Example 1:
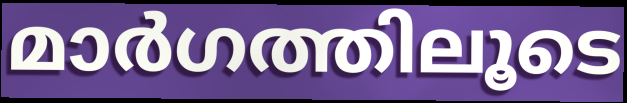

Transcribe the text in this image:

മാർഗത്തിലൂടെ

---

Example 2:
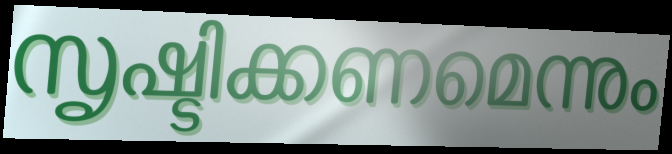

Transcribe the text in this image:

സൃഷ്ടിക്കണമെന്നും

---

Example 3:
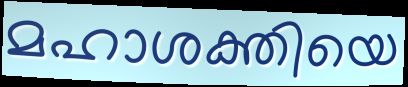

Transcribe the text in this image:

മഹാശക്തിയെ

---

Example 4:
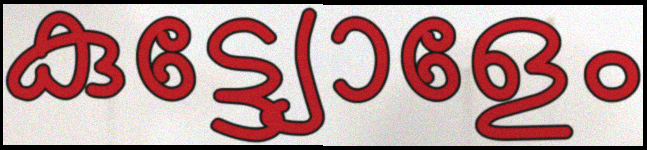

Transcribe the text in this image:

കുട്ട്യോളേം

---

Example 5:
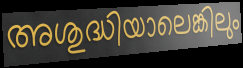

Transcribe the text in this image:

അശുദ്ധിയാലെങ്കിലും